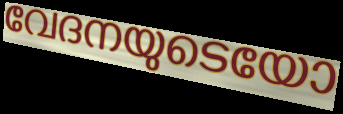
വേദനയുടെയോ